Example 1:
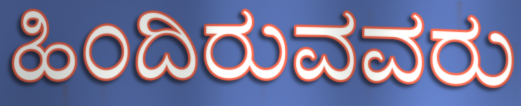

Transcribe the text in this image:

ಹಿಂದಿರುವವರು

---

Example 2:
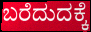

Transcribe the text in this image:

ಬರೆದುದಕ್ಕೆ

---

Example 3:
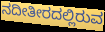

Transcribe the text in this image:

ನದೀತೀರದಲ್ಲಿರುವ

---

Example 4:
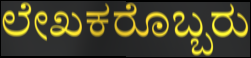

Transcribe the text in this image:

ಲೇಖಕರೊಬ್ಬರು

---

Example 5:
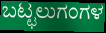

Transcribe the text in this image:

ಬಟ್ಟಲುಗಂಗಳ